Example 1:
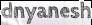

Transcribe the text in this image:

dnyanesh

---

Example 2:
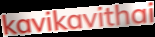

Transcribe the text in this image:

kavikavithai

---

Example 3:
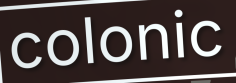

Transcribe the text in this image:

colonic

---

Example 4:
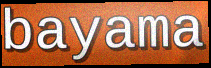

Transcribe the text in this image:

bayama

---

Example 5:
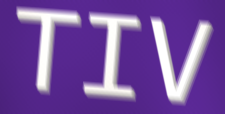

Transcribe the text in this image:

TIV